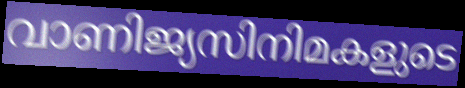
വാണിജ്യസിനിമകളുടെ